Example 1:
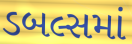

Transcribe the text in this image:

ડબલ્સમાં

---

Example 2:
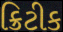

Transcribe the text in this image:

ક્રિટીક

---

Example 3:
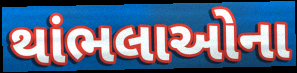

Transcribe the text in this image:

થાંભલાઓના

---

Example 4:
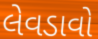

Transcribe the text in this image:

લેવડાવો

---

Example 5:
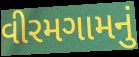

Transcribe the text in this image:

વીરમગામનું